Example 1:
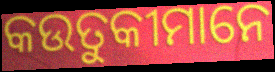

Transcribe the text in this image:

କଉତୁକୀମାନେ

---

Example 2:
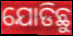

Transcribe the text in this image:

ଯୋଡିଛୁ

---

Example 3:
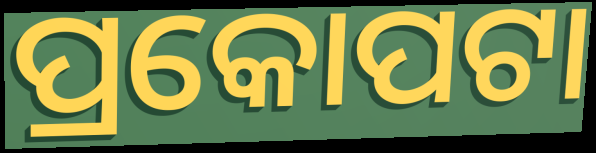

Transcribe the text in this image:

ପ୍ରକୋପଟା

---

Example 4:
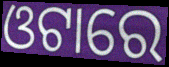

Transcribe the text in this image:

ଓଟାରେ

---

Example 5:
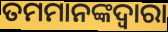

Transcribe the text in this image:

ତମମାନଙ୍କଦ୍ଵାରା